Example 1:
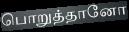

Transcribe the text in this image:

பொறுத்தானோ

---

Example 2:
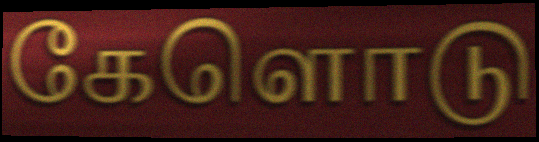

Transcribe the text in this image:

கேளொடு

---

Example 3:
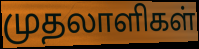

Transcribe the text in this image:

முதலாளிகள்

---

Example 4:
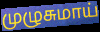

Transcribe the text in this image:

முழுசுமாய்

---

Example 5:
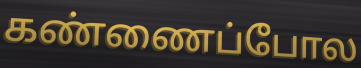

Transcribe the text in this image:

கண்ணைப்போல